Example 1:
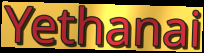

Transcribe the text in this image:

Yethanai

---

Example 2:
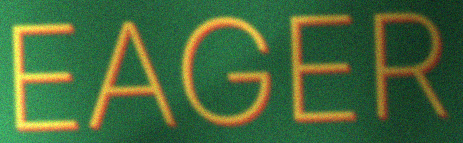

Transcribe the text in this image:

EAGER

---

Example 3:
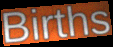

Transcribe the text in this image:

Births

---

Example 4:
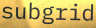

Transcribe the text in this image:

subgrid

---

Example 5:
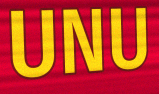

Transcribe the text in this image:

UNU